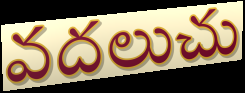
వదలుచు